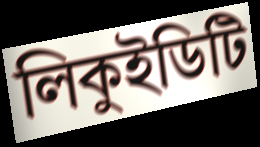
লিকুইডিটি